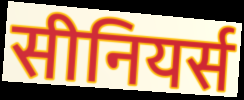
सीनियर्स